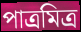
পাত্রমিত্র